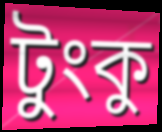
টুংকু